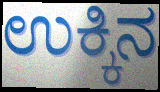
ಉಕ್ಕಿನ